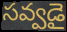
సవ్వడై